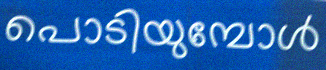
പൊടിയുമ്പോൾ